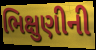
ભિક્ષુણીની